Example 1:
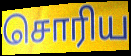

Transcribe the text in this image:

சொரிய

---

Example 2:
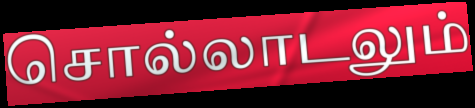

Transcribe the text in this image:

சொல்லாடலும்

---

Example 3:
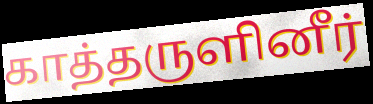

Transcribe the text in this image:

காத்தருளினீர்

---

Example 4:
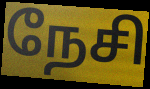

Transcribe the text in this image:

நேசி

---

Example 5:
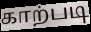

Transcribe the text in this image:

காற்படி